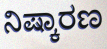
ನಿಷ್ಕಾರಣ